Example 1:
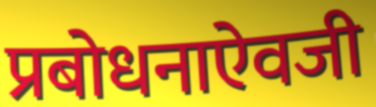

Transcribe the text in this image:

प्रबोधनाऐवजी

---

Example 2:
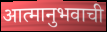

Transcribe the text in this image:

आत्मानुभवाची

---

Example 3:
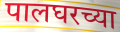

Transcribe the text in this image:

पालघरच्या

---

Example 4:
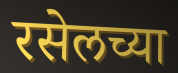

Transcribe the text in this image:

रसेलच्या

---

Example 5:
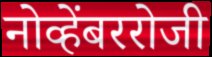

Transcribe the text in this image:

नोव्हेंबररोजी